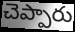
చెప్పారు